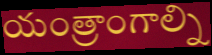
యంత్రాంగాల్ని